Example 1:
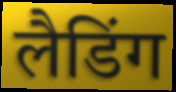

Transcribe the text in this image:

लैडिंग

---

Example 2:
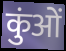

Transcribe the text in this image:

कुंओं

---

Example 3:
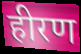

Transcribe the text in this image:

हीरण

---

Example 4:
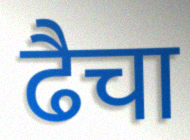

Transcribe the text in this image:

ढैचा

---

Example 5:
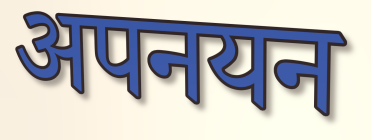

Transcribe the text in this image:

अपनयन